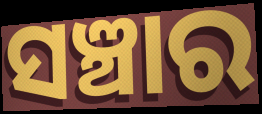
ସଞ୍ଚାର